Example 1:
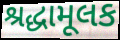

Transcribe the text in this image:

શ્રદ્ધામૂલક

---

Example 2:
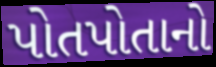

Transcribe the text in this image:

પોતપોતાનો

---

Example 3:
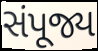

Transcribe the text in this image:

સંપૂજ્ય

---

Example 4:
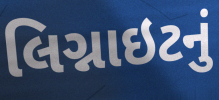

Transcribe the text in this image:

લિગ્નાઇટનું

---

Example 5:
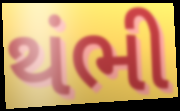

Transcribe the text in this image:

થંભી